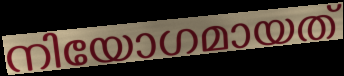
നിയോഗമായത്